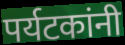
पर्यटकांनी